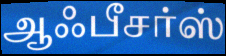
ஆஃபீசர்ஸ்